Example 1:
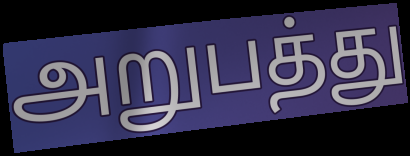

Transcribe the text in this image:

அறுபத்து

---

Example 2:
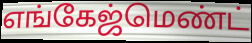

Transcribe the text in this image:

எங்கேஜ்மெண்ட்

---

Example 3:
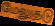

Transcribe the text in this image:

மேலுதடு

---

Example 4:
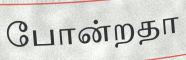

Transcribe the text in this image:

போன்றதா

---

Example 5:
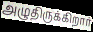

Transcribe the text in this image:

அழுதிருக்கிறார்